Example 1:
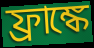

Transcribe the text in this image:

ফ্রাঙ্কে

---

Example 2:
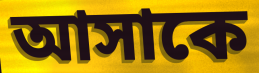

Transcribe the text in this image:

আসাকে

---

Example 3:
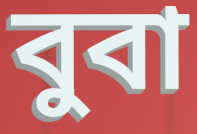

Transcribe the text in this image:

বুবা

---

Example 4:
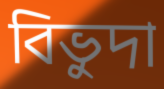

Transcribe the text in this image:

বিভুদা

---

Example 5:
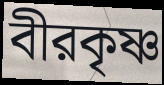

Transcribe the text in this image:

বীরকৃষ্ণ